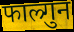
फाल्गुन